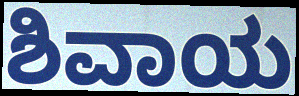
ಶಿವಾಯ